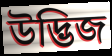
উদ্ভিজ